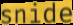
snide